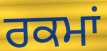
ਰਕਮਾਂ